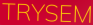
TRYSEM